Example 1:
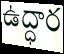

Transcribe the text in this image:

ఉద్ధార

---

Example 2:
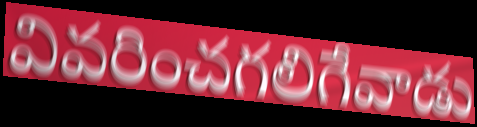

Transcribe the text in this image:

వివరించగలిగేవాడు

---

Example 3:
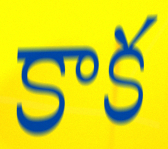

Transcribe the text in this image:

కాక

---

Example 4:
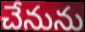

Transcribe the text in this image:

చేనును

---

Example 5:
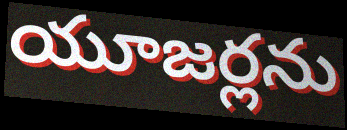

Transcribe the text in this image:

యూజర్లను